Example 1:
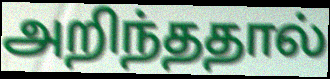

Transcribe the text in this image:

அறிந்ததால்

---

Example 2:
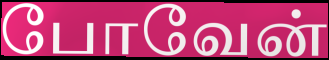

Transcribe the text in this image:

போவேன்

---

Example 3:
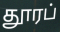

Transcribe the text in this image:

தூரப்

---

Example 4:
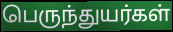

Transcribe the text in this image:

பெருந்துயர்கள்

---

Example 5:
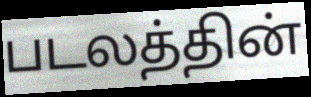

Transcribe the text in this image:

படலத்தின்